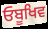
ਓਬੂਖਿਵ